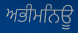
ਅਭੀਮਨਿਊ